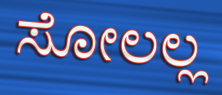
ಸೋಲಲ್ಲ